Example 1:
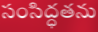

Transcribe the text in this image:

సంసిద్ధతను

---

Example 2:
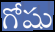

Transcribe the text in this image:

గోషు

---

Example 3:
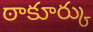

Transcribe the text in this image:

ఠాకూర్కు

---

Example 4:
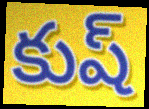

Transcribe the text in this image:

కుష్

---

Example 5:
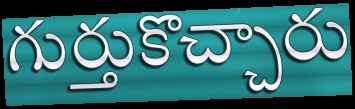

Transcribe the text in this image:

గుర్తుకొచ్చారు